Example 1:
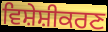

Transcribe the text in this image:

ਵਿਸ਼ੇਸ਼ੀਕਰਣ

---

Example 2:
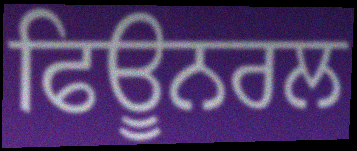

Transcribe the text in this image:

ਫਿਊਨਰਲ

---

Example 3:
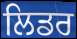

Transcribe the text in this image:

ਲਿਡਰ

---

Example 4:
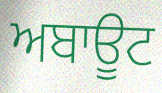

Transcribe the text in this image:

ਅਬਾਊਟ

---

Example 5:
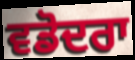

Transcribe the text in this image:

ਵਡੋਦਰਾ